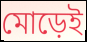
মোড়েই